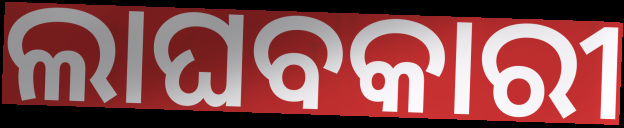
ଲାଘବକାରୀ